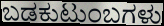
ಬಡಕುಟುಂಬಗಳು